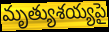
మృత్యుశయ్యపై